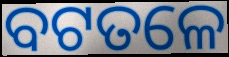
ବଟତଳେ